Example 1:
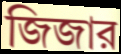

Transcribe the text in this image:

জিজার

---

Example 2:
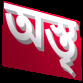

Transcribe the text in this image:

অস্তৃ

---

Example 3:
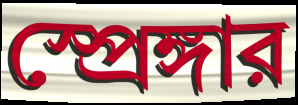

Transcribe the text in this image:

স্প্রেঙ্গার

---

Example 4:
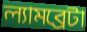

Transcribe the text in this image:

ল্যামব্রেটা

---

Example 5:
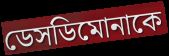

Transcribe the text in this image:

ডেসডিমোনাকে